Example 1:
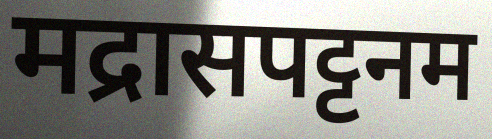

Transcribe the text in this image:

मद्रासपट्टनम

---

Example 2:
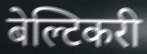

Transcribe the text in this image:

बेल्टिकरी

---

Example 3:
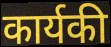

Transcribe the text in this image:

कार्यकी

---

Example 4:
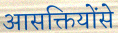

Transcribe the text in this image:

आसक्तियोंसे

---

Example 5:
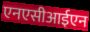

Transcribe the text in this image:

एनएसीआईएन